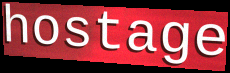
hostage